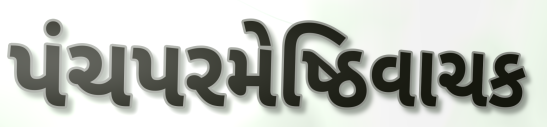
પંચપરમેષ્ઠિવાચક